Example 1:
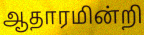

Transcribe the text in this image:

ஆதாரமின்றி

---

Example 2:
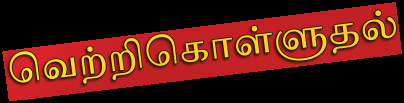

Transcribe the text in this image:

வெற்றிகொள்ளுதல்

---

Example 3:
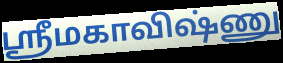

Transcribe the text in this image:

ஸ்ரீமகாவிஷ்ணு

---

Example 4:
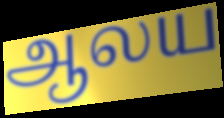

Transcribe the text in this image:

ஆலய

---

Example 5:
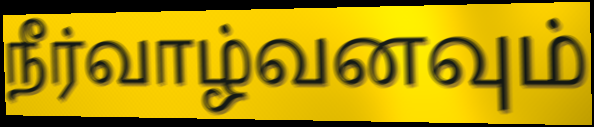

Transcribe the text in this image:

நீர்வாழ்வனவும்